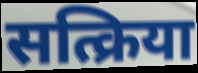
सत्क्रिया